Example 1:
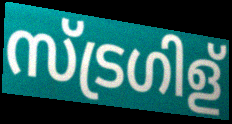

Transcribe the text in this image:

സ്ട്രഗിള്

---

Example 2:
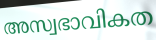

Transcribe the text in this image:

അസ്വഭാവികത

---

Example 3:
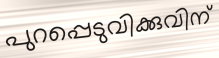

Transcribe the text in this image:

പുറപ്പെടുവിക്കുവിന്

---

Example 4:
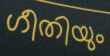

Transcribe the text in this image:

ഗീതിയും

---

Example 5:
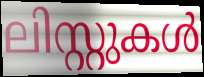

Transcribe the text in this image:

ലിസ്റ്റുകൾ